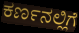
ಕರ್ಣನಲ್ಲಿಗೆ